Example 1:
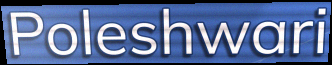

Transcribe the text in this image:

Poleshwari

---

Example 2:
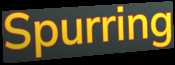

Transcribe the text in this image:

Spurring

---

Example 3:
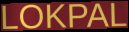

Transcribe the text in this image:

LOKPAL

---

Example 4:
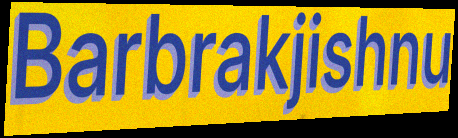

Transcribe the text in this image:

Barbrakjishnu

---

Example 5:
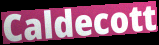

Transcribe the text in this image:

Caldecott